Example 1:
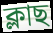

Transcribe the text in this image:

ক্লাছ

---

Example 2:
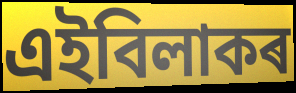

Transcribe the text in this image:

এইবিলাকৰ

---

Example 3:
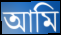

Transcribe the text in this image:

আমি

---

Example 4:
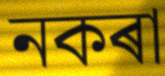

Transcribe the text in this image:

নকৰা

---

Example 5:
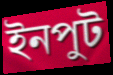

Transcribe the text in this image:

ইনপুট